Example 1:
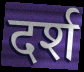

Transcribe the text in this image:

दर्श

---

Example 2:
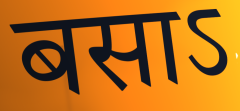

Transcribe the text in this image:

बसाऽ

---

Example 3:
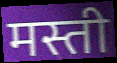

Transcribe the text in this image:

मस्ती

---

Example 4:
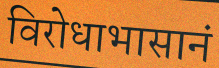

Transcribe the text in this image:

विरोधाभासानं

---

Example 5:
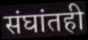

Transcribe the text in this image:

संघांतही